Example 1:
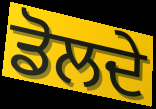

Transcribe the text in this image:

ਡੋਲਦੇ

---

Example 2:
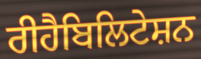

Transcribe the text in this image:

ਰੀਹੈਬਿਲਿਟੇਸ਼ਨ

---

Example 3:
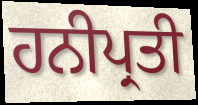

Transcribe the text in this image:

ਹਨੀਪ੍ਰਤੀ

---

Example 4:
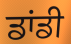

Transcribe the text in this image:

ਡਾਂਡੀ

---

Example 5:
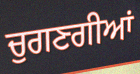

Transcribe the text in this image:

ਚੁਗਣਗੀਆਂ